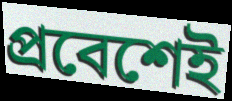
প্রবেশেই